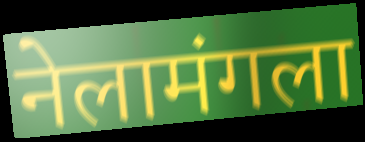
नेलामंगला